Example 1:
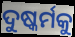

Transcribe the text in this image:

ଦୁଷ୍କର୍ମକୁ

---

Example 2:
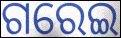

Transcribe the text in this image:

ଗରେଇ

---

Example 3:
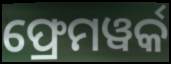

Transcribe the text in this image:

ଫ୍ରେମୱର୍କ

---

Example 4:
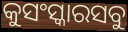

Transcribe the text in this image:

କୁସଂସ୍କାରସବୁ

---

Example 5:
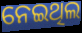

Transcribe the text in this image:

ନେଇଥିଲ